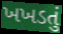
ખખડતું